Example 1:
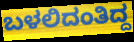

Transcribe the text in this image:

ಬಳಲಿದಂತಿದ್ದ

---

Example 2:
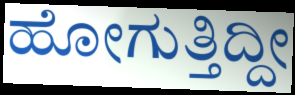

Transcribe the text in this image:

ಹೋಗುತ್ತಿದ್ದೀ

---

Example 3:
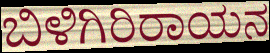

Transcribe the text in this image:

ಬಿಳಿಗಿರಿರಾಯನ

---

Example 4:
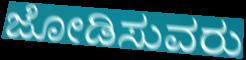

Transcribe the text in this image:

ಜೋಡಿಸುವರು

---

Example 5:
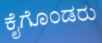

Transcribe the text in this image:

ಕೈಗೊಂಡರು